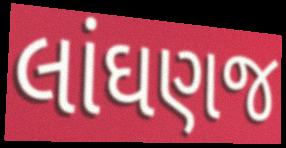
લાંઘણજ